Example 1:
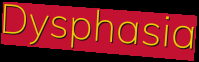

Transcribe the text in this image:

Dysphasia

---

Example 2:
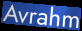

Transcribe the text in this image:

Avrahm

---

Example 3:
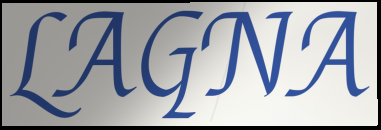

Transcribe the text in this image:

LAGNA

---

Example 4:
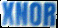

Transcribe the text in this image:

XNOR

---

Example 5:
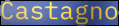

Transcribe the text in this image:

Castagno